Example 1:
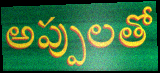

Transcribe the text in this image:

అప్పులతో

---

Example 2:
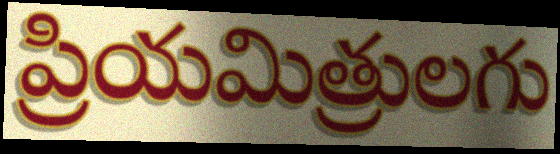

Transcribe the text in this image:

ప్రియమిత్రులగు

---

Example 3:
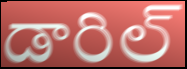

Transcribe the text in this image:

డారిల్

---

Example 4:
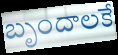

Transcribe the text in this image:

బృందాలకే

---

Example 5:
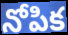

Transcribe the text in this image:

నోపిక